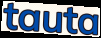
tauta